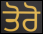
ਤੋਰੋ